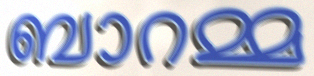
ബാറമ്മ